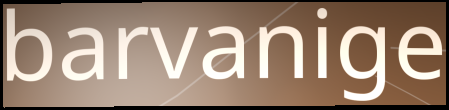
barvanige